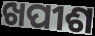
ଖପୀଶ